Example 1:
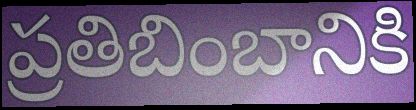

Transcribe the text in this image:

ప్రతిబింబానికి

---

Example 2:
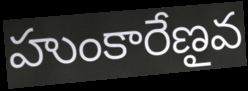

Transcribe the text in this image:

హుంకారేణౖవ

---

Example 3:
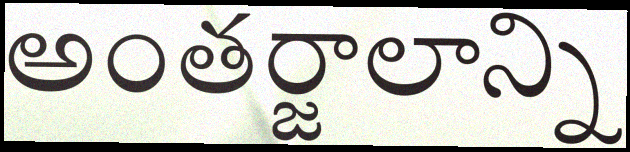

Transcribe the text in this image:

అంతర్జాలాన్ని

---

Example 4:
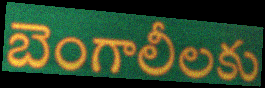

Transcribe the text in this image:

బెంగాలీలకు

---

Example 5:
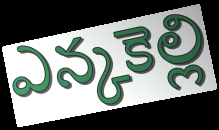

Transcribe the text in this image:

ఎన్కకెల్లి